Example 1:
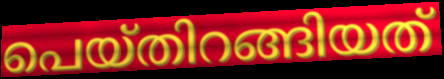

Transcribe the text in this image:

പെയ്തിറങ്ങിയത്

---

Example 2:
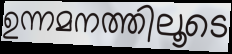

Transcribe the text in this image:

ഉന്നമനത്തിലൂടെ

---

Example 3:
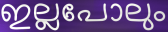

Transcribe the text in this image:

ഇല്ലപോലും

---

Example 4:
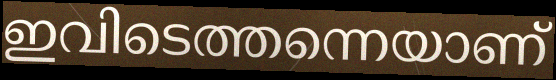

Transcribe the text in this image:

ഇവിടെത്തന്നെയാണ്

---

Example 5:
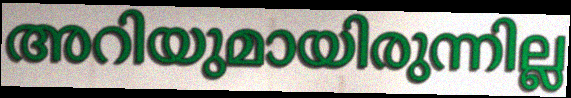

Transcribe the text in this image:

അറിയുമായിരുന്നില്ല